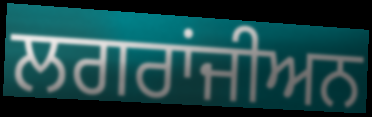
ਲਗਰਾਂਜੀਅਨ